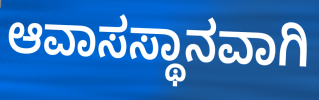
ಆವಾಸಸ್ಥಾನವಾಗಿ